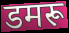
डमरू